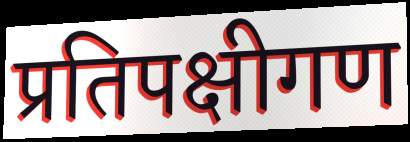
प्रतिपक्षीगण